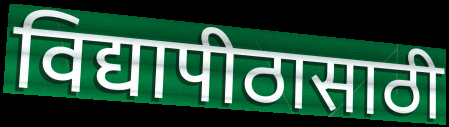
विद्यापीठासाठी